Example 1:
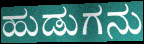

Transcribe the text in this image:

ಹುಡುಗನು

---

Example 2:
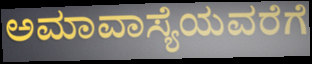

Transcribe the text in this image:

ಅಮಾವಾಸ್ಯೆಯವರೆಗೆ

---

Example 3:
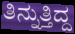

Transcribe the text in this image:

ತಿನ್ನುತ್ತಿದ್ದ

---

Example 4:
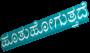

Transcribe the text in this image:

ಹೂತುಹೋಗುತ್ತದೆ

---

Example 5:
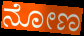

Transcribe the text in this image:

ನೋಣ